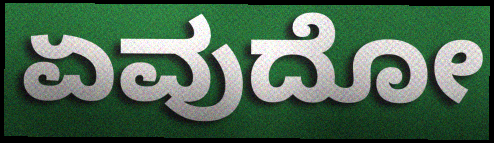
ಏವುದೋ